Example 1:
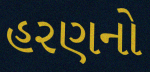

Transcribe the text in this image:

હરણનો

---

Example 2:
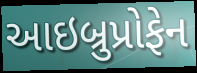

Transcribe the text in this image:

આઇબ્રુપ્રોફેન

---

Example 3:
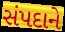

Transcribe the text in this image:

સંપદાને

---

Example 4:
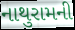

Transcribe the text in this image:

નાથુરામની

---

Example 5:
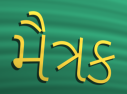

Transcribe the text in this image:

મૈત્રક